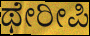
ಥೇರೀಪಿ